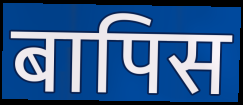
बापिस